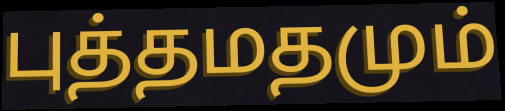
புத்தமதமும்